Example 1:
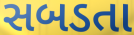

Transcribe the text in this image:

સબડતા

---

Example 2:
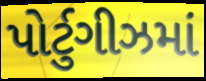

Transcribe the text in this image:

પોર્ટુગીઝમાં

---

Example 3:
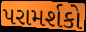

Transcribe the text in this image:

પરામર્શકો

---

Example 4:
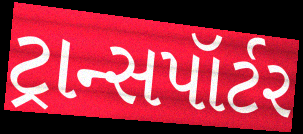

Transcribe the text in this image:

ટ્રાન્સપૉર્ટર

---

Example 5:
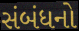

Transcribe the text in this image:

સંબંધનો